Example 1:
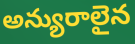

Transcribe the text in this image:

అన్యురాలైన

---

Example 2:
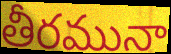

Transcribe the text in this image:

తీరమునా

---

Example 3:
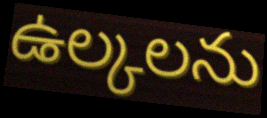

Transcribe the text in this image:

ఉల్కలను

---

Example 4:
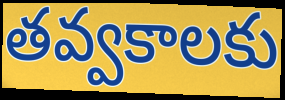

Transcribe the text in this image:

తవ్వకాలకు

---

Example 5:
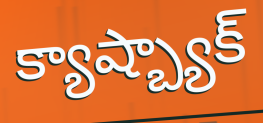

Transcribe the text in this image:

క్యాష్బ్యాక్